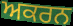
ਅਕਰਨ